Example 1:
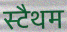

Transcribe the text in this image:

स्टैथम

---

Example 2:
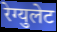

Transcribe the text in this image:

रेग्‍युलेट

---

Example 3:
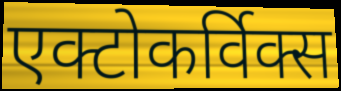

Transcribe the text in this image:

एक्टोकर्विक्स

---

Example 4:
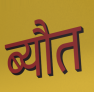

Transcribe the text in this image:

ब्यौत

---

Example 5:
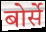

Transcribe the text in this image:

बोर्से